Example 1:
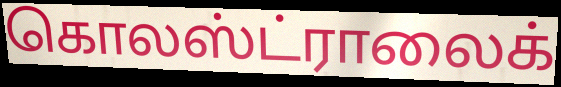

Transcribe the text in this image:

கொலஸ்ட்ராலைக்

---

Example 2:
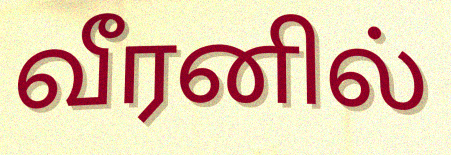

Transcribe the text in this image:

வீரனில்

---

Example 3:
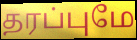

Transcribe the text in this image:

தரப்புமே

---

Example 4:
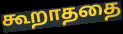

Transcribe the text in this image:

கூறாததை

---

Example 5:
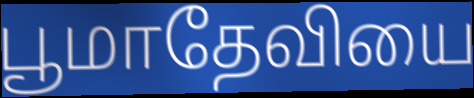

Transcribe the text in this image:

பூமாதேவியை